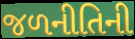
જળનીતિની